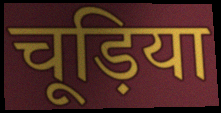
चूड़िया